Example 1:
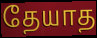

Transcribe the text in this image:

தேயாத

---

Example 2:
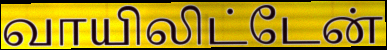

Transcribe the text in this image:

வாயிலிட்டேன்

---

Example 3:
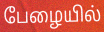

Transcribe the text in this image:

பேழையில்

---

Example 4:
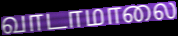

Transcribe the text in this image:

வாடாமாலை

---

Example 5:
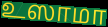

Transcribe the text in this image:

உஸாமா